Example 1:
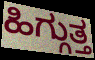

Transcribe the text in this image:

ಹಿಗ್ಗುತ್ತ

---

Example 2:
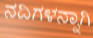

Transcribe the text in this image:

ನದಿಗಳನ್ನಾಗಿ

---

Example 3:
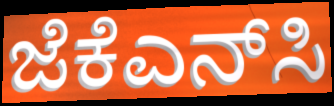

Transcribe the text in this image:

ಜೆಕೆಎನ್‌ಸಿ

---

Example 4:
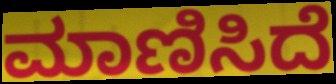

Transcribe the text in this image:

ಮಾಣಿಸಿದೆ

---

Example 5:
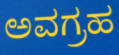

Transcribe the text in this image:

ಅವಗ್ರಹ